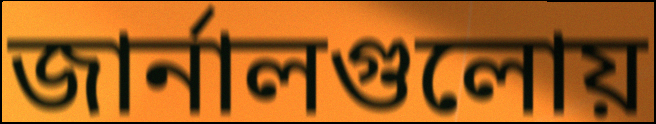
জার্নালগুলোয়